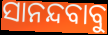
ସାନନ୍ଦବାବୁ